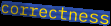
correctness